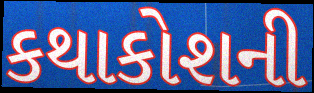
કથાકોશની